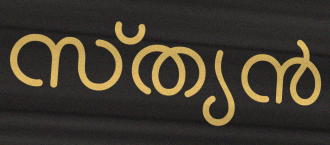
സ്‌ത്യൻ